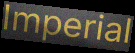
Imperial